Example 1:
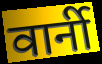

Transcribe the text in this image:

वार्नी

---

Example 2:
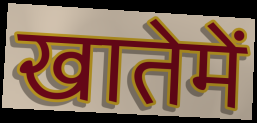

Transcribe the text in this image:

खातेमें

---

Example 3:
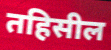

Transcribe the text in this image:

तहिसील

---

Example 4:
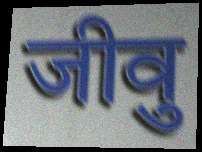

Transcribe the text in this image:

जीवु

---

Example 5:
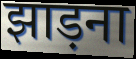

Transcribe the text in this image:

झाड़ना